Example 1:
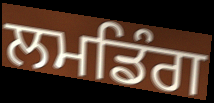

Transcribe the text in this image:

ਲਮਡਿੰਗ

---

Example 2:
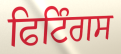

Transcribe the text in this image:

ਫਿਟਿੰਗਸ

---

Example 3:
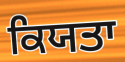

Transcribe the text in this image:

ਕਿਯਤਾ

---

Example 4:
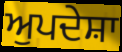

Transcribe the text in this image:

ਅੁਪਦੇਸ਼ਾ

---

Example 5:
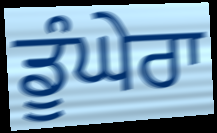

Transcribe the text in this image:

ਡੂੰਘੇਰਾ